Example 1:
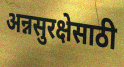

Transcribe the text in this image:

अन्नसुरक्षेसाठी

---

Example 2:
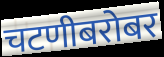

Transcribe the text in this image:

चटणीबरोबर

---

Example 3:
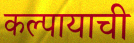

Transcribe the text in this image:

कल्पायाची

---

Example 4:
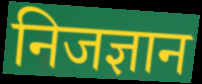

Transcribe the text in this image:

निजज्ञान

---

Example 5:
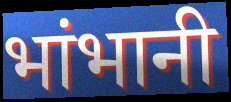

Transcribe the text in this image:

भांभानी